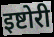
इष्टोरी